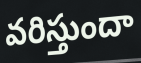
వరిస్తుందా